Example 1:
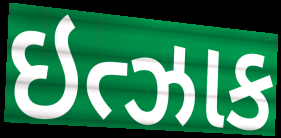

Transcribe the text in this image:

ઇત્ઝાક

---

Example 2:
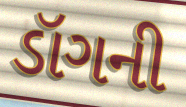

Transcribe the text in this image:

ડૉગની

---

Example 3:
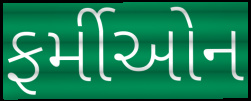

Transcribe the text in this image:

ફર્મીઓન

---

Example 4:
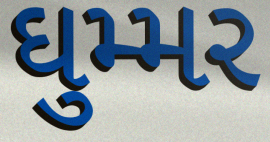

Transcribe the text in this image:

ઘુમ્મર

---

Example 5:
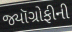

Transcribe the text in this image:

જ્યૉગ્રોફીની